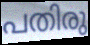
പതിരു